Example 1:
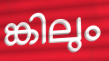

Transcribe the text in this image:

ങ്കിലും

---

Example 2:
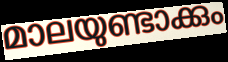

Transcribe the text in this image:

മാലയുണ്ടാക്കും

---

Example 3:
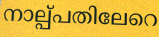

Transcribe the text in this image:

നാല്പ്പതിലേറെ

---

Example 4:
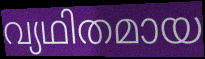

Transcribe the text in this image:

വ്യഥിതമായ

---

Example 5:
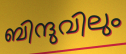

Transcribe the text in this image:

ബിന്ദുവിലും